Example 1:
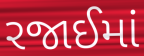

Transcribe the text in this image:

રજાઈમાં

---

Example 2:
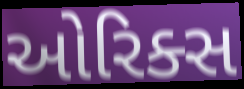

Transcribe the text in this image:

ઓરિક્સ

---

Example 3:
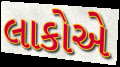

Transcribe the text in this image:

લાકોએ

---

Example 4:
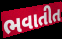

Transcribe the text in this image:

ભવાતીત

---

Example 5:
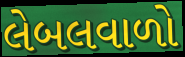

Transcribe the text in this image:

લેબલવાળો